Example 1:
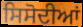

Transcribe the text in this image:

ਸਿਸੋਦੀਆਂ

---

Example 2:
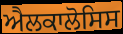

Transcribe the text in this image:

ਐਲਕਾਲੋਸਿਸ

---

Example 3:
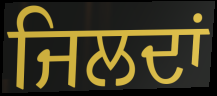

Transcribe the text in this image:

ਜਿਲਦਾਂ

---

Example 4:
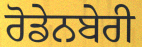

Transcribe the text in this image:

ਰੋਡੇਨਬੇਰੀ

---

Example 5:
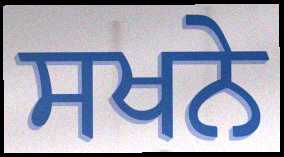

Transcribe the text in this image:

ਸਖਨੇ